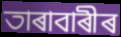
তাৰাবাৰীৰ